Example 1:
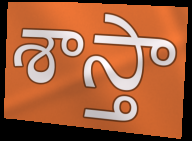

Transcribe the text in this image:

శాస్తా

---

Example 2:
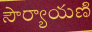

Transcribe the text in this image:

సౌర్యాయణి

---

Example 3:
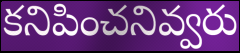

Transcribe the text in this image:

కనిపించనివ్వరు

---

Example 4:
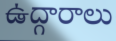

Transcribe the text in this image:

ఉద్గారాలు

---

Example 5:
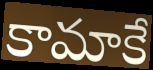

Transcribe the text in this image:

కామాకే